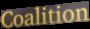
Coalition